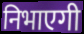
निभाएगी